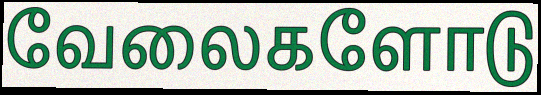
வேலைகளோடு